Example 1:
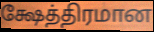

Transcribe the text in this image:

க்ஷேத்திரமான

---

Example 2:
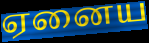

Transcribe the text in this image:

ஏனைய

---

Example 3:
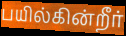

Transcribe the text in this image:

பயில்கின்றீர்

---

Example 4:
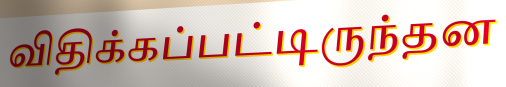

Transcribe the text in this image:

விதிக்கப்பட்டிருந்தன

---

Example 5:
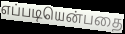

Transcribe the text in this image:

எப்படியென்பதை